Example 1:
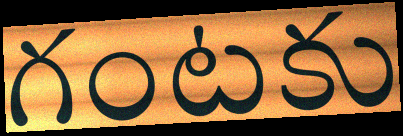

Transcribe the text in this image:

గంటకు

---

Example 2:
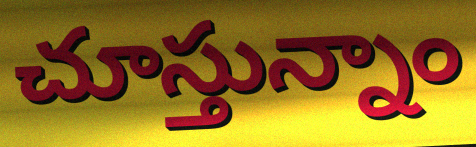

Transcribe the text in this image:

చూస్తున్నాం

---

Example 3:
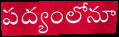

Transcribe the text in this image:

పద్యంలోనూ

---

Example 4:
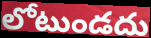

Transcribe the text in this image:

లోటుండదు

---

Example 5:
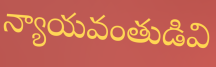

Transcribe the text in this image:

న్యాయవంతుడివి